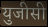
युजीसी